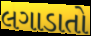
લગાડાતો